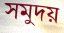
সমুদয়